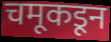
चमूकडून